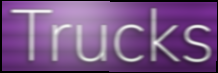
Trucks